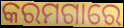
କରମଗାରେ